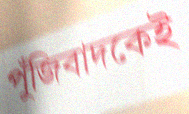
পুঁজিবাদকেই